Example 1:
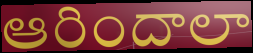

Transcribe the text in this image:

ఆరిందాలా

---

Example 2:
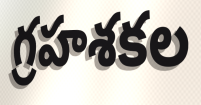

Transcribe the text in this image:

గ్రహశకల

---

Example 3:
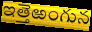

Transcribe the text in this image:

ఇత్తెఱంగున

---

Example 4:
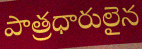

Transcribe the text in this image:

పాత్రధారులైన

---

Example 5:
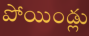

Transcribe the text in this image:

పోయిండ్లు